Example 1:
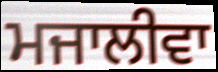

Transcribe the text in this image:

ਮਜਾਲੀਵਾ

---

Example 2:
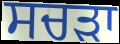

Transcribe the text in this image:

ਸਚੜਾ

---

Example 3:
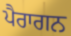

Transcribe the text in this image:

ਪੈਰਾਗਨ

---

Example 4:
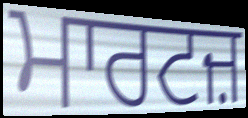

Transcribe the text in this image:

ਮਾਰਟਜ਼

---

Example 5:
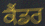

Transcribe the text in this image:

ਕੈਂਡਰ